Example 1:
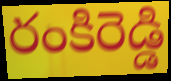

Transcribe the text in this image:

రంకిరెడ్డి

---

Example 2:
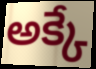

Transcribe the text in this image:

అక్కే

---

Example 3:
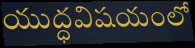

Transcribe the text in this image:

యుద్ధవిషయంలో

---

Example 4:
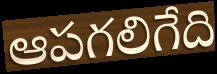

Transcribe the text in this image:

ఆపగలిగేది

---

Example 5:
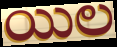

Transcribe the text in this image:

యిల